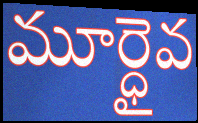
మూర్ధైవ